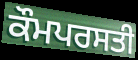
ਕੌਮਪਰਸਤੀ